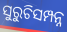
ସୁରୁଚିସମ୍ପନ୍ନ